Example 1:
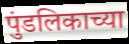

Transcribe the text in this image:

पुंडलिकाच्या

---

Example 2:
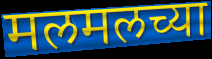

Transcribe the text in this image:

मलमलच्या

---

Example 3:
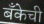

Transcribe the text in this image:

बँकेची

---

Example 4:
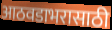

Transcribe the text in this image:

आठवडाभरासाठी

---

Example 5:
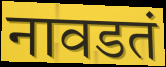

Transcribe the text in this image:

नावडतं